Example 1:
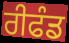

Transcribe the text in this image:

ਰੀਫੰਡ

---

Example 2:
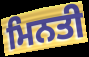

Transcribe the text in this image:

ਮਿਨਤੀ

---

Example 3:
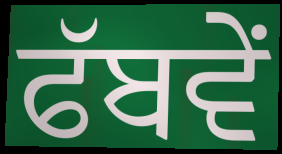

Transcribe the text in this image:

ਫੱਬਵੇਂ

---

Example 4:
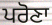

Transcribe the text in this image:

ਪਰੋਣਾ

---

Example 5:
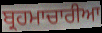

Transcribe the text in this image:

ਬ੍ਰਹਮਾਚਾਰੀਆ